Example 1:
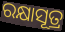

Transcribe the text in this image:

ରକ୍ଷାସୂତ୍ର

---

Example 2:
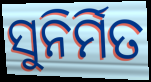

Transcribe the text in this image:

ସୁନିର୍ମିତ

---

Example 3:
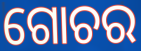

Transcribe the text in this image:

ଗୋଚର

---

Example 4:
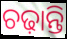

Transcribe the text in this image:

ଚଢ଼ାନ୍ତି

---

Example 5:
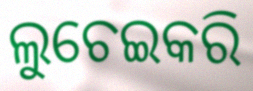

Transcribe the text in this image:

ଲୁଚେଇକରି